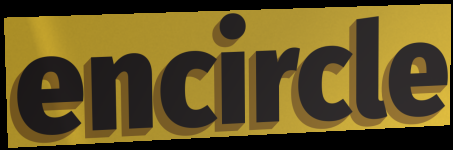
encircle